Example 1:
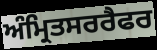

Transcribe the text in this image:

ਅੰਮ੍ਰਿਤਸਰਰੈਫਰ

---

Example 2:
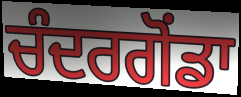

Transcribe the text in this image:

ਚੰਦਰਗੋਂਡਾ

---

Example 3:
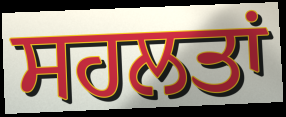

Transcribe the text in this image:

ਸਹਲਤਾਂ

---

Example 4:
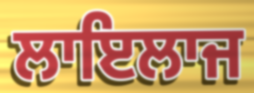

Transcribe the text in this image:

ਲਾਇਲਾਜ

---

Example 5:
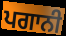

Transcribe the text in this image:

ਪਗਾਨੀ